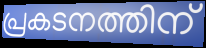
പ്രകടനത്തിന്